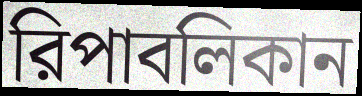
রিপাবলিকান